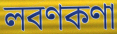
লবণকণা